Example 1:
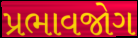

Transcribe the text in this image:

પ્રભાવજોગ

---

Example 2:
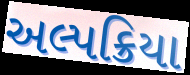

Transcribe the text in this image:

અલ્પક્રિયા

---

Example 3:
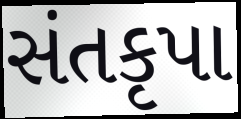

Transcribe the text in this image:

સંતકૃપા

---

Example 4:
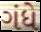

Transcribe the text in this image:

ગંધે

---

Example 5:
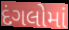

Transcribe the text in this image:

દંગલોમાં